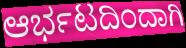
ಆರ್ಭಟದಿಂದಾಗಿ